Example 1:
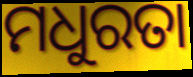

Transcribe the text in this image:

ମଧୁରତା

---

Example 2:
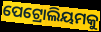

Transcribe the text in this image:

ପେଟ୍ରୋଲିୟମକୁ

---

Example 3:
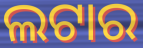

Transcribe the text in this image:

ଲଟାର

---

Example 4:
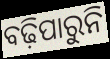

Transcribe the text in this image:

ବଢ଼ିପାରୁନି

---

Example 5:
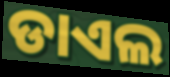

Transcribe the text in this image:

ଡାଏଲ